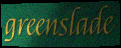
greenslade